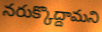
నరుక్కొద్దామని